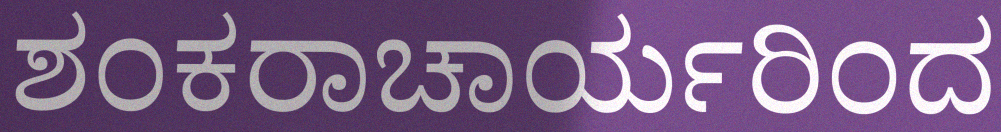
ಶಂಕರಾಚಾರ್ಯರಿಂದ